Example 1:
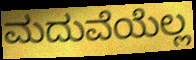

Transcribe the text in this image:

ಮದುವೆಯೆಲ್ಲ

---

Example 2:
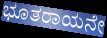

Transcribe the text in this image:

ಭೂತರಾಯನೇ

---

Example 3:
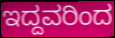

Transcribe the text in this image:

ಇದ್ದವರಿಂದ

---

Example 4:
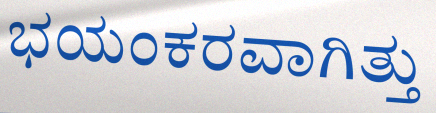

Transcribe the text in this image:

ಭಯಂಕರವಾಗಿತ್ತು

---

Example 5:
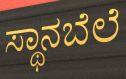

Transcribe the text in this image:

ಸ್ಥಾನಬೆಲೆ